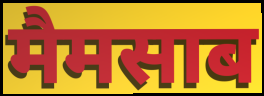
मैमसाब